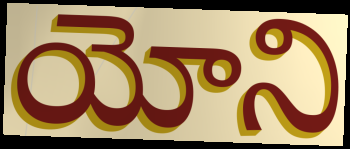
యోని